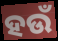
ହଉଁ